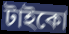
টাইকো